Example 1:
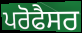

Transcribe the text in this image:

ਪਰੋਫੈਸਰ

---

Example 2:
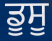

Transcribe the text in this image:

ਡੂਸੂ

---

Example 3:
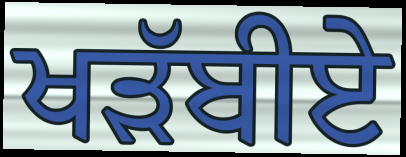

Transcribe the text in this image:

ਖੜੱਬੀਏ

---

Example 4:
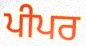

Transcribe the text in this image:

ਪੀਪਰ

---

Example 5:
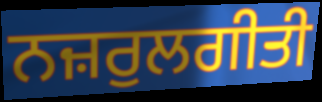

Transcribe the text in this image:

ਨਜ਼ਰੁਲਗੀਤੀ